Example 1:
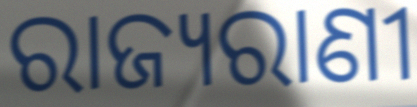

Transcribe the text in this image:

ରାଜ୍ୟରାଣୀ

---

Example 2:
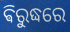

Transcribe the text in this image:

ଵିରୁଦ୍ଧରେ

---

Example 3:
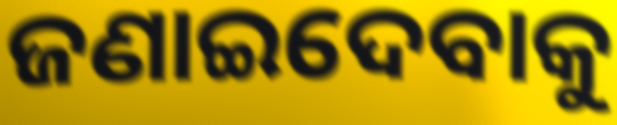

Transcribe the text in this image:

ଜଣାଇଦେବାକୁ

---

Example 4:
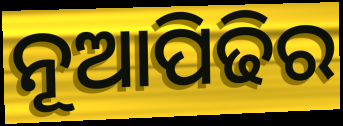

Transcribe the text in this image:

ନୂଆପିଢିର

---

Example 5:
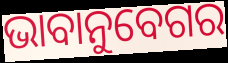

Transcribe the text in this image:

ଭାବାନୁବେଗର